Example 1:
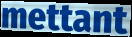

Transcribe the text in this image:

mettant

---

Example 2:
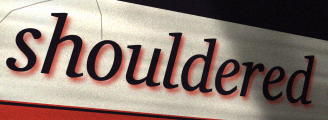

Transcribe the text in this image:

shouldered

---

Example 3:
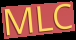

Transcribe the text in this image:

MLC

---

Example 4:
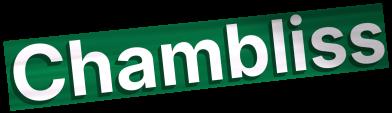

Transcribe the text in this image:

Chambliss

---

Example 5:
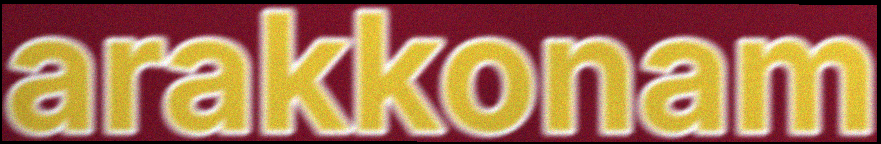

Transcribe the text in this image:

arakkonam